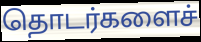
தொடர்களைச்